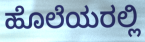
ಹೊಲೆಯರಲ್ಲಿ